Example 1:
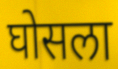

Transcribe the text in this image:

घोसला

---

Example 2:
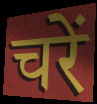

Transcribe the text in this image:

चरें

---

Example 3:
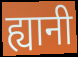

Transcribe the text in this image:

ह्यानी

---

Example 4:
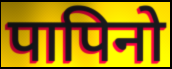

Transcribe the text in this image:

पापिनो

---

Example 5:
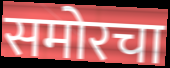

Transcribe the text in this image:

समोरचा